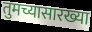
तुमच्यासारख्या